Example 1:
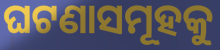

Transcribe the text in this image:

ଘଟଣାସମୂହକୁ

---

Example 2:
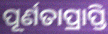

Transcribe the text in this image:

ପୂର୍ଣତାପ୍ରାପ୍ତି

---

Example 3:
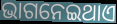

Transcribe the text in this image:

ଭାଗନେଇଥାଏ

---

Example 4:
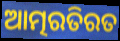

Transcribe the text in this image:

ଆତ୍ମରତିରତ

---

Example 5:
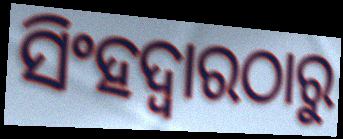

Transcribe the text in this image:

ସିଂହଦ୍ୱାରଠାରୁ